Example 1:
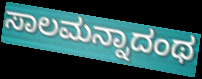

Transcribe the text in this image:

ಸಾಲಮನ್ನಾದಂಥ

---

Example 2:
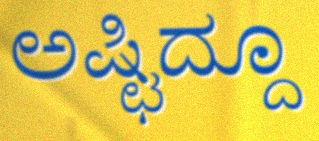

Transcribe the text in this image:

ಅಷ್ಟಿದ್ದೂ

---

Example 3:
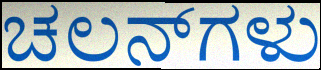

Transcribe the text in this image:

ಚಲನ್‌ಗಳು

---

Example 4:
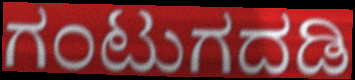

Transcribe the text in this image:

ಗಂಟುಗದಡಿ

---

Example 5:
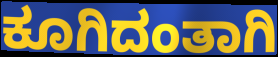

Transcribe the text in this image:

ಕೂಗಿದಂತಾಗಿ